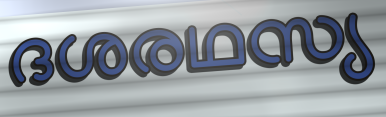
ദശരഥസ്യ